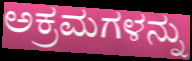
ಅಕ್ರಮಗಳನ್ನು